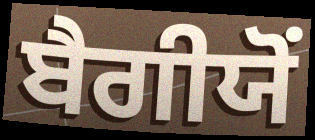
ਬੈਗੀਯੋਂ